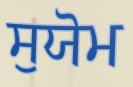
ਸੁਯੋਮ